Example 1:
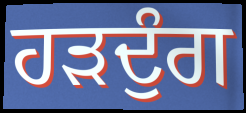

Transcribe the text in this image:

ਹੜਦੁੰਗ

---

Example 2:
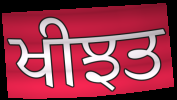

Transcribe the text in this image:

ਖੀਝਤ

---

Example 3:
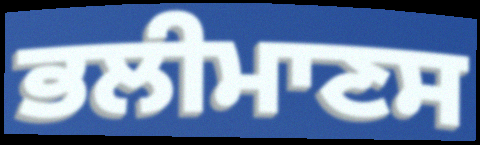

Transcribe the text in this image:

ਭਲੀਮਾਣਸ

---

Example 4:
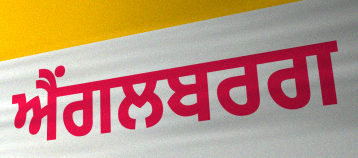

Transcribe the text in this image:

ਐਂਗਲਬਰਗ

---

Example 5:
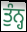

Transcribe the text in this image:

ਤੁੰਨ੍ਹ